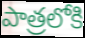
పాత్రలోకి